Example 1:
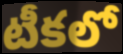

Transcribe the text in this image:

టీకలో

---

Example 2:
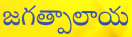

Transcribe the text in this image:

జగత్పాలాయ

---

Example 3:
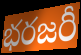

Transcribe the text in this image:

భరజరీ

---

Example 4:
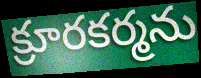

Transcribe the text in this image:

క్రూరకర్మను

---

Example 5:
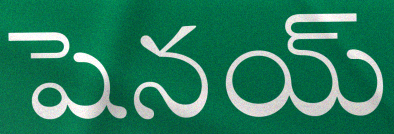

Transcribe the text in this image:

షెనయ్